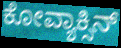
ಕೋವ್ಯಾಕ್ಸಿನ್